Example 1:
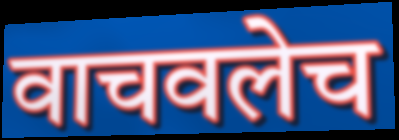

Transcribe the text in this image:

वाचवलेच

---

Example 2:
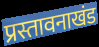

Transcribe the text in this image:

प्रस्तावनाखंड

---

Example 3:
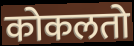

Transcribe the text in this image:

कोकलतो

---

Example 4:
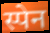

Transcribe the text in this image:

स्पेन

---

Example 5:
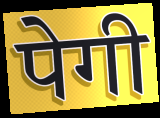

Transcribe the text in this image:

पेगी